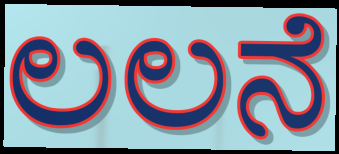
ಲಲನೆ